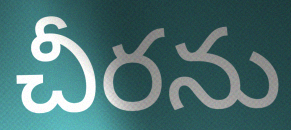
చీరను